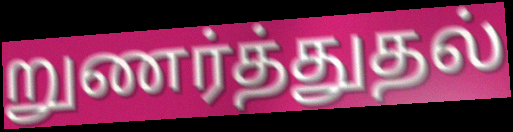
றுணர்த்துதல்